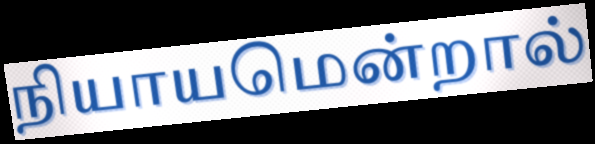
நியாயமென்றால்